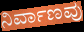
ನಿರ್ವಾಣವು